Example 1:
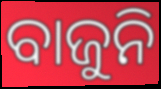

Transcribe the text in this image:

ବାଜୁନି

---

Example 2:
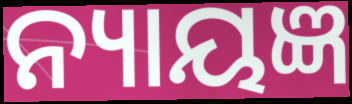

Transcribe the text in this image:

ନ୍ୟାୟଜ୍ଞ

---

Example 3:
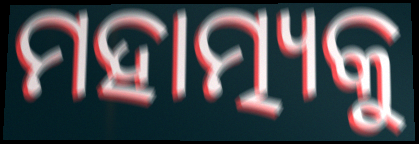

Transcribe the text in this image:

ମହାତ୍ମ୍ୟକୁ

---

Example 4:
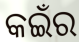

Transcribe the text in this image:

କଇଁର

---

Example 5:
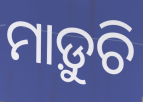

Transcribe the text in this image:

ମାଡ଼ୁଚି